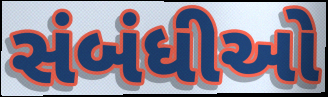
સંબંધીઓ